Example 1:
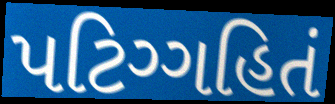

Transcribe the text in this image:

પટિગ્ગહિતં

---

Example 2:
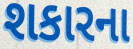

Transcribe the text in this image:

શકારના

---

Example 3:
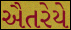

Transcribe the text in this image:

ઐતરેયે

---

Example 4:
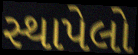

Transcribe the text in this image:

સ્થાપેલો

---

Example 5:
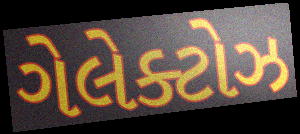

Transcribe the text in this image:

ગેલેક્ટોઝ